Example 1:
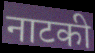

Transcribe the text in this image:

नाटकी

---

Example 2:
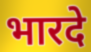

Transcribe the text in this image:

भारदे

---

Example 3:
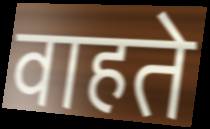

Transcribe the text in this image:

वाहते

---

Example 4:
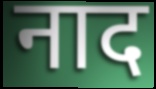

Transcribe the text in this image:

नाद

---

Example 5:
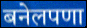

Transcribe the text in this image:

बनेलपणा